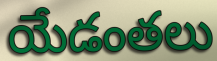
యేడంతలు